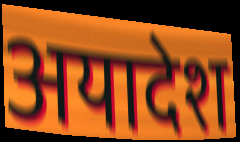
अयादेश